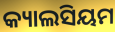
କ୍ୟାଲସିୟମ